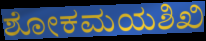
ಶೋಕಮಯಶಿಖಿ